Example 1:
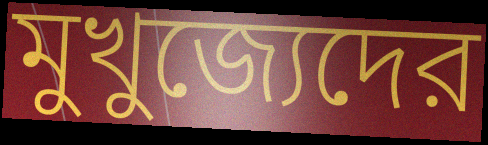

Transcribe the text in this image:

মুখুজ্যেদের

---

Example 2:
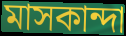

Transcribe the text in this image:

মাসকান্দা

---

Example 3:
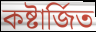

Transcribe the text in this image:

কষ্টার্জিত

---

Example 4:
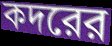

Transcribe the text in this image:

কদরের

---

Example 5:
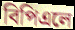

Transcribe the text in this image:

বিপিএলে